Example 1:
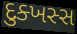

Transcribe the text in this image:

દુક્ખસ્સ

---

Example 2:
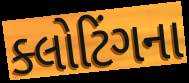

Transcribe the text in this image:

ક્લોટિંગના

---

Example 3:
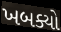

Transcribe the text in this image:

ખબક્યો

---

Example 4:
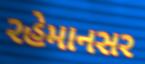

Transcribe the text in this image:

રહેમાનસર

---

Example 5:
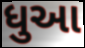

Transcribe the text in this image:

ધુઆ